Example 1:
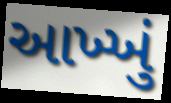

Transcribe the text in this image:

આખ્ખું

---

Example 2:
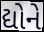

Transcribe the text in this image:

દ્યોને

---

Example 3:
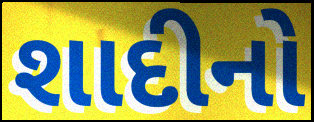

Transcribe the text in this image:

શાદીનો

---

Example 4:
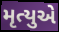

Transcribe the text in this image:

મૃત્યુએ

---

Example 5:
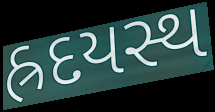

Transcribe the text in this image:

હ્રદયસ્થ